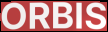
ORBIS